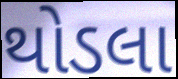
થોડલા